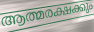
ആത്മരക്ഷക്കും